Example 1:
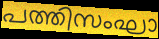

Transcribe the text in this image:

പത്തിസംഘാ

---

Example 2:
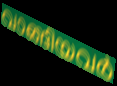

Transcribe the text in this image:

വാങ്ങിയവർ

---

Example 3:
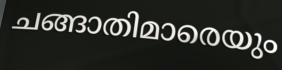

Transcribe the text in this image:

ചങ്ങാതിമാരെയും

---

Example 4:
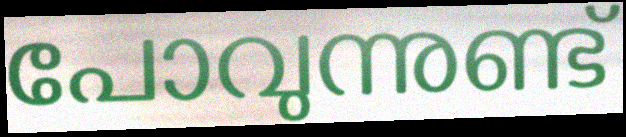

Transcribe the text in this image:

പോവുന്നുണ്ട്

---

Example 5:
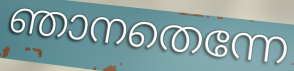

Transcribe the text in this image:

ഞാനതെന്നേ